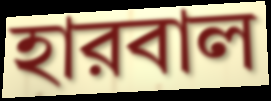
হারবাল